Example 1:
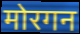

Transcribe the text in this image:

मोरगन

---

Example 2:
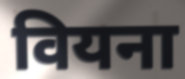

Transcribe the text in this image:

वियना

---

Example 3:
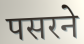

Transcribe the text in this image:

पसरने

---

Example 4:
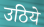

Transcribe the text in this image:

उठिये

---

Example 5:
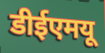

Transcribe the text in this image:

डीईएमयू